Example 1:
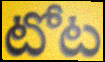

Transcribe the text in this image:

టోట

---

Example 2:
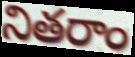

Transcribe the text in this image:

నితరాం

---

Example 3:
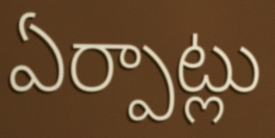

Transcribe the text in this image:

ఏర్పాట్లు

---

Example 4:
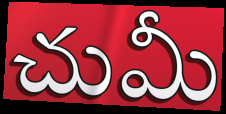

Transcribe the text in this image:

చుమీ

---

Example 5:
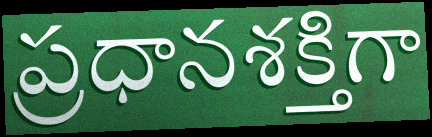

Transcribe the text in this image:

ప్రధానశక్తిగా